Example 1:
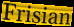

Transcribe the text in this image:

Frisian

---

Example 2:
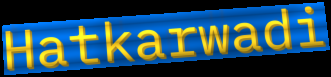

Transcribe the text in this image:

Hatkarwadi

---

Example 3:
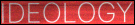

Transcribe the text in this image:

IDEOLOGY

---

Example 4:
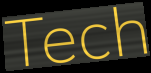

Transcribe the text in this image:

Tech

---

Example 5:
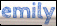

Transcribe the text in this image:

emily